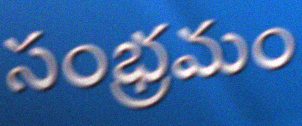
సంభ్రమం